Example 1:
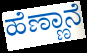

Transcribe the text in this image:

ಹೆಣ್ಣಾನೆ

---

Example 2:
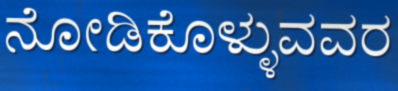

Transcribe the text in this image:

ನೋಡಿಕೊಳ್ಳುವವರ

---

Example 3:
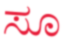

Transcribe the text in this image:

ಸೂ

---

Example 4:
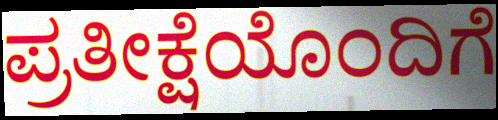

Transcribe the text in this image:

ಪ್ರತೀಕ್ಷೆಯೊಂದಿಗೆ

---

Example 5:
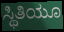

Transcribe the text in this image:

ಸ್ಥಿತಿಯೂ